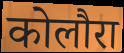
कोलौरा